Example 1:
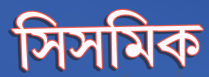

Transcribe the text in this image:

সিসমিক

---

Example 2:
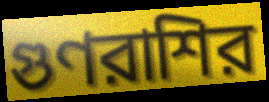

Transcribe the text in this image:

গুণরাশির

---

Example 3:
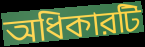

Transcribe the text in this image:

অধিকারটি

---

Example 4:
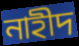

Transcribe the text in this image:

নাহীদ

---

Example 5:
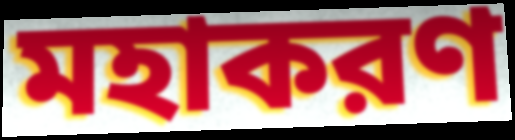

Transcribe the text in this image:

মহাকরণ